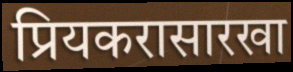
प्रियकरासारखा